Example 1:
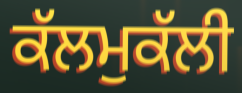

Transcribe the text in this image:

ਕੱਲਮੁਕੱਲੀ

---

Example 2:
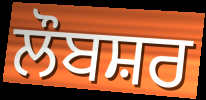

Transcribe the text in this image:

ਲੌਬਸ਼ਰ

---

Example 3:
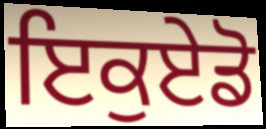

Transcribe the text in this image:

ਇਕੁਏਡੋ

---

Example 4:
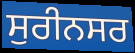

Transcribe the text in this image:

ਸੁਰੀਨਸਰ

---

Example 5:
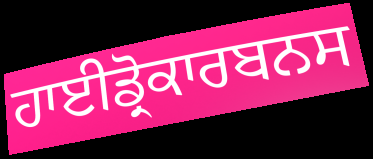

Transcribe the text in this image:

ਹਾਈਡ੍ਰੋਕਾਰਬਨਸ